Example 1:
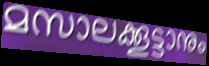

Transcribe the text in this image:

മസാലക്കൂട്ടാനും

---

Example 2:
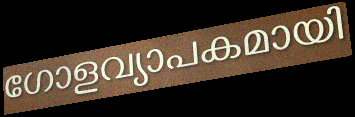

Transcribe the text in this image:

ഗോളവ്യാപകമായി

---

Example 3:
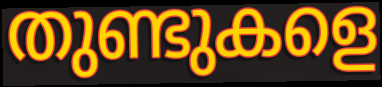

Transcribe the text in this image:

തുണ്ടുകളെ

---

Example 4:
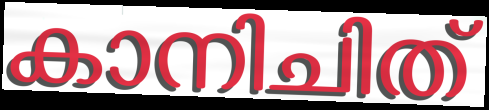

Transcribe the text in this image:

കാനിചിത്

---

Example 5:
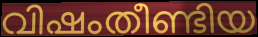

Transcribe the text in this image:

വിഷംതീണ്ടിയ